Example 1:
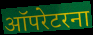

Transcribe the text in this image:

ऑपरेटरना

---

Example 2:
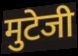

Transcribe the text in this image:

मुटेजी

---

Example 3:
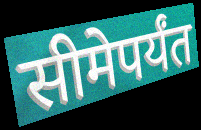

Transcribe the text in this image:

सीमेपर्यंत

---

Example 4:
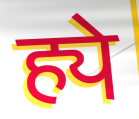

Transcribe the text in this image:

ह्ये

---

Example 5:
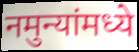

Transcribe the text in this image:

नमुन्यांमध्ये